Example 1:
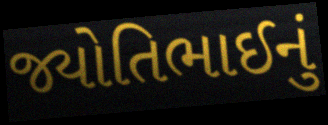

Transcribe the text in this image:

જ્યોતિભાઈનું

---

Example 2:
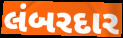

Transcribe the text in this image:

લંબરદાર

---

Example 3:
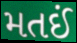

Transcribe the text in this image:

મતઈં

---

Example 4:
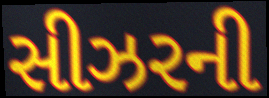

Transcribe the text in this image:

સીઝરની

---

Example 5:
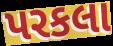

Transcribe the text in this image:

પરકલા